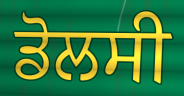
ਡੋਲਸੀ